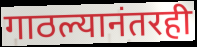
गाठल्यानंतरही